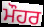
ਮੌਹਰ